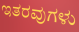
ಇತರವುಗಳು